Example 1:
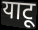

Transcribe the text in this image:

याटू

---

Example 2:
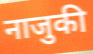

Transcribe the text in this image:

नाजुकी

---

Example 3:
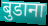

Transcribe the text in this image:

बुडाना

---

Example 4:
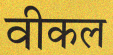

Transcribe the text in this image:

वीकल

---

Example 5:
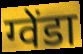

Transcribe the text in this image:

ग्वेंडा